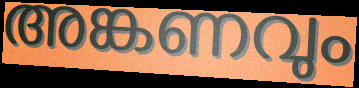
അങ്കണവും